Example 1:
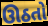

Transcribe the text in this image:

ઊઠતો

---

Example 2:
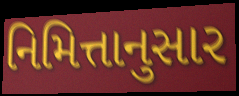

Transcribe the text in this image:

નિમિત્તાનુસાર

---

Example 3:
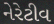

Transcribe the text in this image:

નેરેટીવ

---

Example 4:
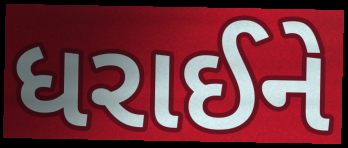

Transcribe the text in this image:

ધરાઈને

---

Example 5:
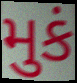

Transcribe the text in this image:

મુકં